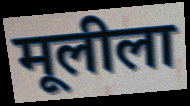
मूलीला